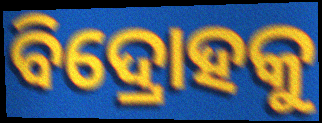
ବିଦ୍ରୋହକୁ